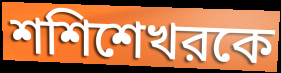
শশিশেখরকে